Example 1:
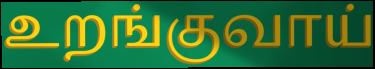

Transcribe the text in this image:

உறங்குவாய்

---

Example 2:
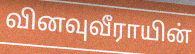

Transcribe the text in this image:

வினவுவீராயின்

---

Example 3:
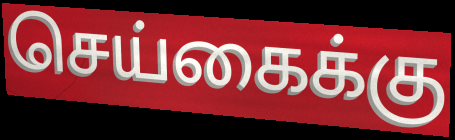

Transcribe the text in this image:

செய்கைக்கு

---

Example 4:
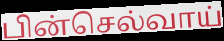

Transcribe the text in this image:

பின்செல்வாய்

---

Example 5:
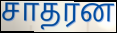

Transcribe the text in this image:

சாதரன